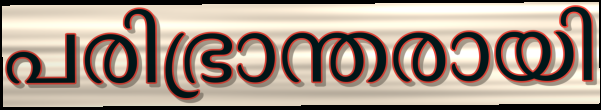
പരിഭ്രാന്തരായി